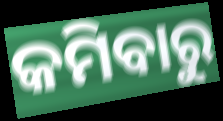
କମିବାରୁ